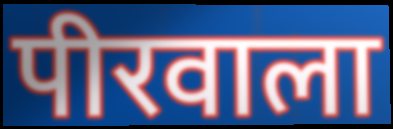
पीरवाला